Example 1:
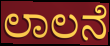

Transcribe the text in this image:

ಲಾಲನೆ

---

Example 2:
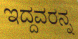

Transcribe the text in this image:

ಇದ್ದವರನ್ನ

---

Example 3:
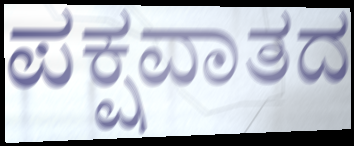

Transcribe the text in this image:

ಪಕ್ಷವಾತದ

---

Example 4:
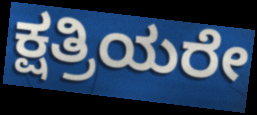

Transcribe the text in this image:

ಕ್ಷತ್ರಿಯರೇ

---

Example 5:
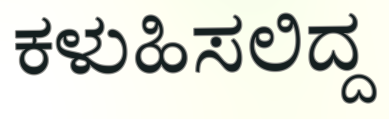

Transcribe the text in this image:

ಕಳುಹಿಸಲಿದ್ದ